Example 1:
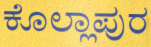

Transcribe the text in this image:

ಕೊಲ್ಲಾಪುರ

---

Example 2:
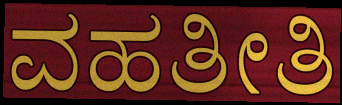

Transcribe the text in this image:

ವಹತೀತಿ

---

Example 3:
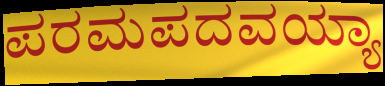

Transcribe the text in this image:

ಪರಮಪದವಯ್ಯಾ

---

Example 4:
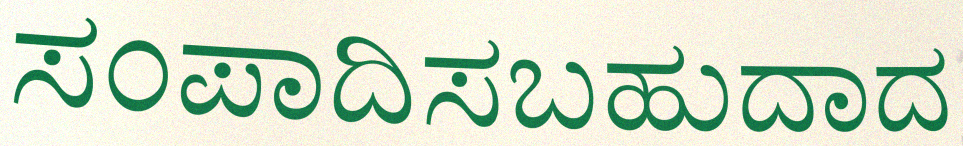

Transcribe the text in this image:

ಸಂಪಾದಿಸಬಹುದಾದ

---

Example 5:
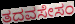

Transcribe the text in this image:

ತದವಸೇಸಂ